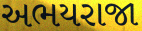
અભયરાજા